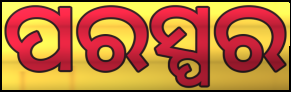
ପରସ୍ପର